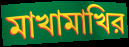
মাখামাখির